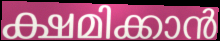
ക്ഷമിക്കാൻ